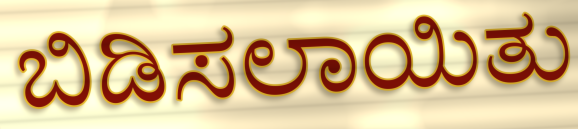
ಬಿಡಿಸಲಾಯಿತು